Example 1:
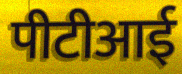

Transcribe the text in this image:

पीटीआई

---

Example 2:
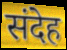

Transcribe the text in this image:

संदेह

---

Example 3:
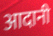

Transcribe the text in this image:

आदानी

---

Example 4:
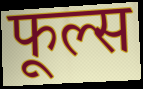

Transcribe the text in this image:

फूल्स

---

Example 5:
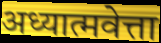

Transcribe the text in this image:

अध्यात्मवेत्ता